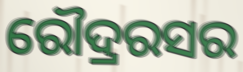
ରୌଦ୍ରରସର